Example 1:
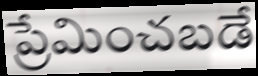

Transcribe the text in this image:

ప్రేమించబడే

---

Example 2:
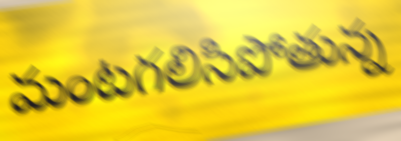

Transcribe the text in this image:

మంటగలిసిపోతున్న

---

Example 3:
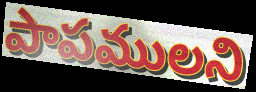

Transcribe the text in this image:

పాపములని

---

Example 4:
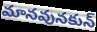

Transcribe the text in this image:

మానవునకున్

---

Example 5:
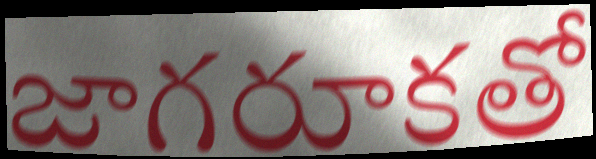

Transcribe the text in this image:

జాగరూకతో